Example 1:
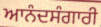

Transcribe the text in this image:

ਆਨੰਦਸੰਗਾਰੀ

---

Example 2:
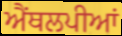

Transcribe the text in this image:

ਐਂਥਲਪੀਆਂ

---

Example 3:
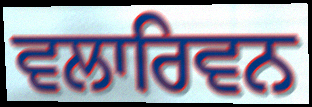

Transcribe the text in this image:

ਵਲਾਰਿਵਨ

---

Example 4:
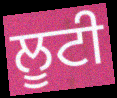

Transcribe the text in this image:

ਲੂਟੀ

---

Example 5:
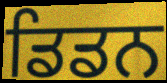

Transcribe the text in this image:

ਡਿਡਨ